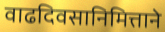
वाढदिवसानिमित्ताने